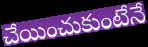
చేయించుకుంటేనే